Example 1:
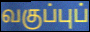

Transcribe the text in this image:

வகுப்புப்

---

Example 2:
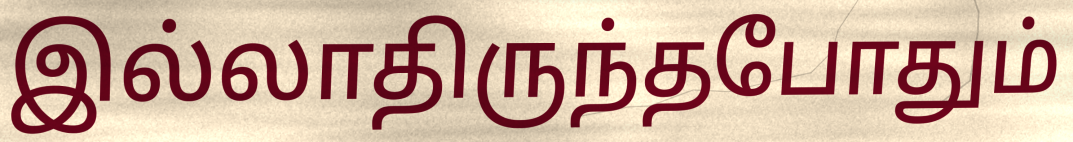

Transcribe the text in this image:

இல்லாதிருந்தபோதும்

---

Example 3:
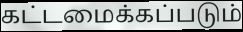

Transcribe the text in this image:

கட்டமைக்கப்படும்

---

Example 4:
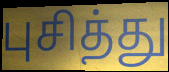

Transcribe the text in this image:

புசித்து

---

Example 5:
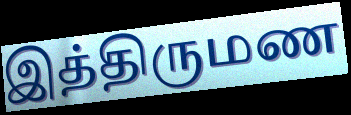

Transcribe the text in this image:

இத்திருமண